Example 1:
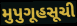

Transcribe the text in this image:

મુપુગૂહસૂચી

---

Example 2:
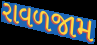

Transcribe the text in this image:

રાવળજામ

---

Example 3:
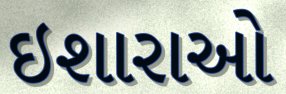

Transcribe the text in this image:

ઇશારાઓ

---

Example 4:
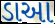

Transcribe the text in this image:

ડાઆ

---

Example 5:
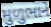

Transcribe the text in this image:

મુળુભાને